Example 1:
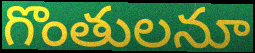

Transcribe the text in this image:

గొంతులనూ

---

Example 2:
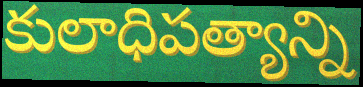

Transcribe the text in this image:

కులాధిపత్యాన్ని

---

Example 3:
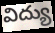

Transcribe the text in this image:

విద్యు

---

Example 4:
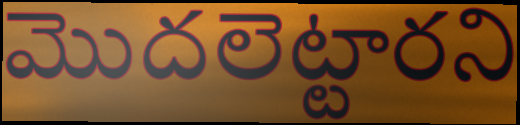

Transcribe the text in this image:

మొదలెట్టారని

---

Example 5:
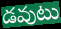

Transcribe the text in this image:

డవుటు